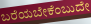
ಬರೆಯಬೇಕೆಂಬುದೇ